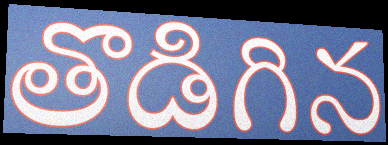
తొడిగిన